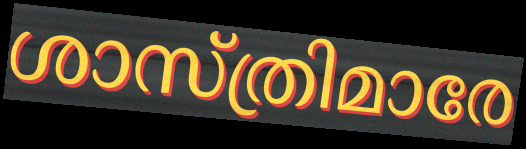
ശാസ്ത്രിമാരേ